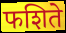
फशिते